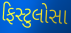
ફિસ્ટુલોસા